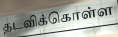
தடவிக்கொள்ள